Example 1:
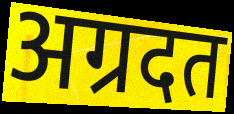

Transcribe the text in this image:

अग्रदत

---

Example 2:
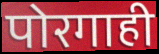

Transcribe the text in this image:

पोरगाही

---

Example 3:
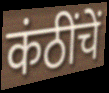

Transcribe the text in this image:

कंठींचें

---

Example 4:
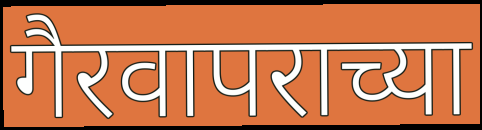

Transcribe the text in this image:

गैरवापराच्या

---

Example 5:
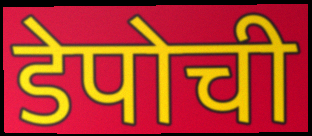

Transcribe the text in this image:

डेपोची